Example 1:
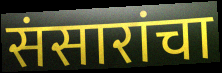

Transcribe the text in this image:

संसारांचा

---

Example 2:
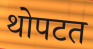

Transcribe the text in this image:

थोपटत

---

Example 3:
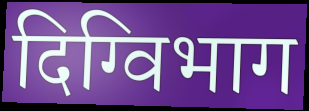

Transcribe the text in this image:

दिग्विभाग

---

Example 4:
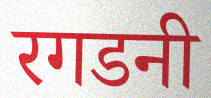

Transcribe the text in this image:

रगडनी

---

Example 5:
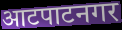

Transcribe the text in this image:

आटपाटनगर